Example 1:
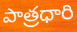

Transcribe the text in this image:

పాత్రధారి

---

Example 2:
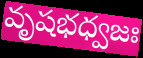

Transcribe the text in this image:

వృషభధ్వజః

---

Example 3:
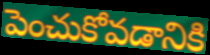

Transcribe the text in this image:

పెంచుకోవడానికి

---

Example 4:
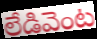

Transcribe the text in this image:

లేడివెంట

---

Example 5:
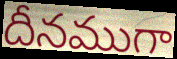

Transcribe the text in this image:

దీనముగా